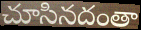
చూసినదంతా